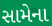
સામેના